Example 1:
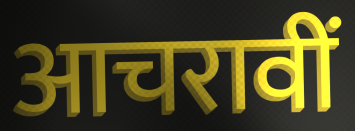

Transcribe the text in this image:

आचरावीं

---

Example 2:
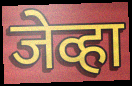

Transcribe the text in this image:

जेव्हा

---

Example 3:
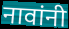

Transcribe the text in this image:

नावांनी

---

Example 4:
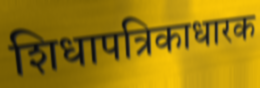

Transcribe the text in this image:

शिधापत्रिकाधारक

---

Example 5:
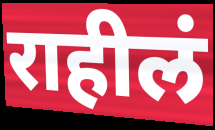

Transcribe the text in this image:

राहीलं